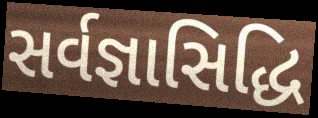
સર્વજ્ઞાસિદ્ધિ